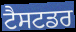
ਟੈਸਟਡਰ